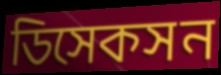
ডিসেকসন